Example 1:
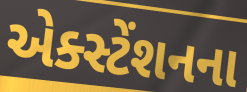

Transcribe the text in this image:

એક્સ્ટેંશનના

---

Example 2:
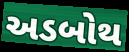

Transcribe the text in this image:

અડબોથ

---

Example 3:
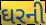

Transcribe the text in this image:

ઘરની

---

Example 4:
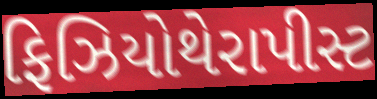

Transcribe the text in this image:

ફિઝિયોથેરાપીસ્ટ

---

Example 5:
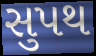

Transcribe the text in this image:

સુપથ